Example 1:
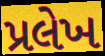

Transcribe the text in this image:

પ્રલેખ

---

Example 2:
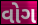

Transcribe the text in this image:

વોગ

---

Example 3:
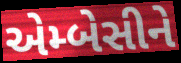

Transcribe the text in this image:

એમ્બેસીને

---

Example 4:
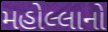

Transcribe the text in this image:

મહોલ્લાનો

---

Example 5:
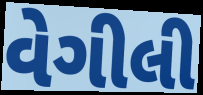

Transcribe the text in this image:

વેગીલી